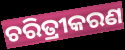
ଚରିତ୍ରୀକରଣ